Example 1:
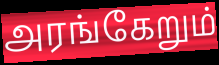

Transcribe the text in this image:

அரங்கேறும்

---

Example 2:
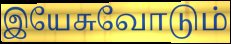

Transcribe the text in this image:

இயேசுவோடும்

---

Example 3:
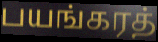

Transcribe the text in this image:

பயங்கரத்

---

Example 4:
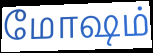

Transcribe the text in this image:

மோஷம்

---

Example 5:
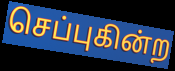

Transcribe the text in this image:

செப்புகின்ற